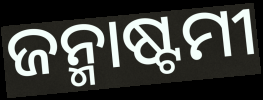
ଜନ୍ମାଷ୍ଟମୀ